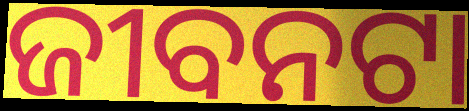
ଜୀବନଟା